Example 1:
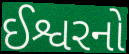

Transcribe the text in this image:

ઈશ્વરનો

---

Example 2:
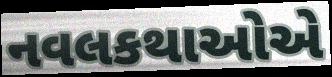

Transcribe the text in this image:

નવલકથાઓએ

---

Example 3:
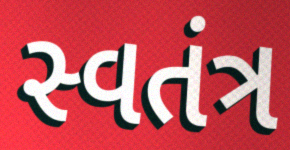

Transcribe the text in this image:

સ્વતંત્ર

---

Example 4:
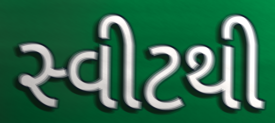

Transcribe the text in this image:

સ્વીટથી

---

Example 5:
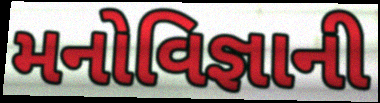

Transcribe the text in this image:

મનોવિજ્ઞાની